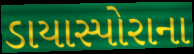
ડાયાસ્પોરાના